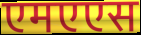
एमएएस